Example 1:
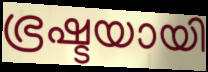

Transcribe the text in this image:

ഭ്രഷ്ടയായി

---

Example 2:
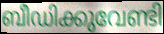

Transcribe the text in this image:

ബീഡിക്കുവേണ്ടി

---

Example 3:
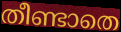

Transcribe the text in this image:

തീണ്ടാതെ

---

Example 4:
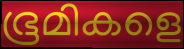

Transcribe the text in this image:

ഭൂമികളെ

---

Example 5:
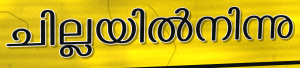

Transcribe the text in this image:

ചില്ലയിൽനിന്നു